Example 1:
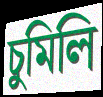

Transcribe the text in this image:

চুমিলি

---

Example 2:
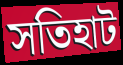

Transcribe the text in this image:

সতিহাট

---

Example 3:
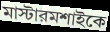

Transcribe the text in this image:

মাস্টারমশাইকে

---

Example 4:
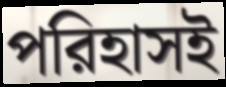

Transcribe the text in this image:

পরিহাসই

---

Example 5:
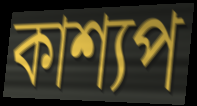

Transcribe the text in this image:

কাশ্যপ